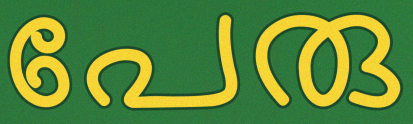
പേരു